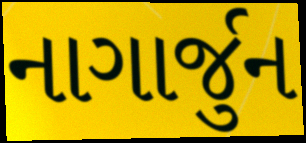
નાગાર્જુન